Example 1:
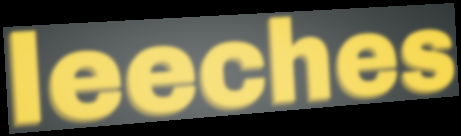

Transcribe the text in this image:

leeches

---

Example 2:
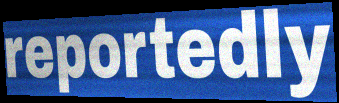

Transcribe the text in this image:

reportedly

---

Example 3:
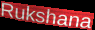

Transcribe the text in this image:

Rukshana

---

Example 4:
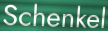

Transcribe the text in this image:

Schenkel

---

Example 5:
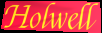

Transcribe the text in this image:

Holwell